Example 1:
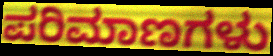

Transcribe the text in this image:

ಪರಿಮಾಣಗಳು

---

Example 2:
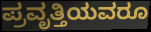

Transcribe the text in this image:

ಪ್ರವೃತ್ತಿಯವರೂ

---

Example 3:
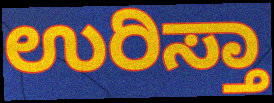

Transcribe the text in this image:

ಉರಿಸ್ತಾ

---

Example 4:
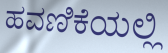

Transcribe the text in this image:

ಹವಣಿಕೆಯಲ್ಲಿ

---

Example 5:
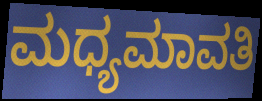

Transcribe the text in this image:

ಮಧ್ಯಮಾವತಿ